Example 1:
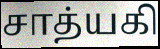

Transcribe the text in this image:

சாத்யகி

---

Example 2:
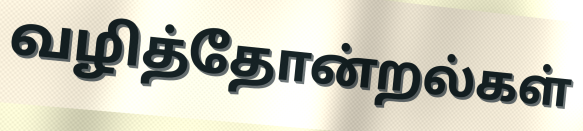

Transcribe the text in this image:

வழித்தோன்றல்கள்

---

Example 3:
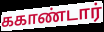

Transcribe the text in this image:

ககாண்டார்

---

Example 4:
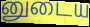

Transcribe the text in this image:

னுடைய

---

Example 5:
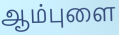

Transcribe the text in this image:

ஆம்புளை